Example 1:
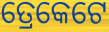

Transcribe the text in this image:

ତ୍ରେକେଟେ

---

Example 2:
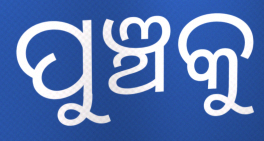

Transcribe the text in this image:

ପୁଞ୍ଚକୁ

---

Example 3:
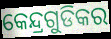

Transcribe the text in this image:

କେନ୍ଦ୍ରଗୁଡିକର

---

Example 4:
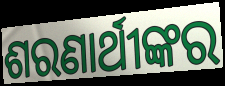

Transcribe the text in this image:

ଶରଣାର୍ଥୀଙ୍କର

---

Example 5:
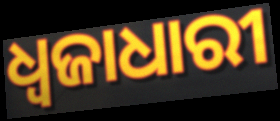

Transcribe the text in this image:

ଧ୍ବଜାଧାରୀ